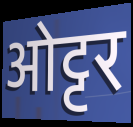
ओट्टर